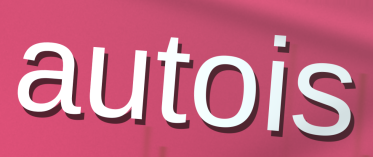
autois